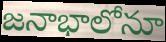
జనాభాలోనూ